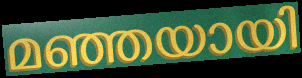
മഞ്ഞയായി